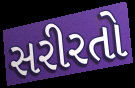
સરીરતો